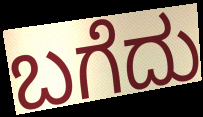
ಬಗೆದು